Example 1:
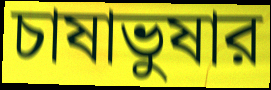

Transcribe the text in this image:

চাষাভুষার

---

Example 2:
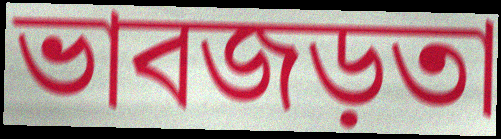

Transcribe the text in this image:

ভাবজড়তা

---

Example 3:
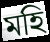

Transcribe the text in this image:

মহি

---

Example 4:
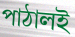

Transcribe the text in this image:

পাঠালই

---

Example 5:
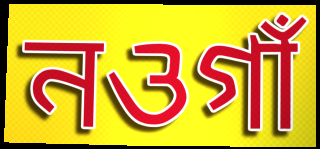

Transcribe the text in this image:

নওগাঁ